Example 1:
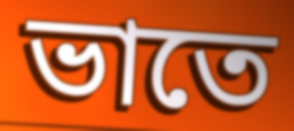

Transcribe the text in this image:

ভাতে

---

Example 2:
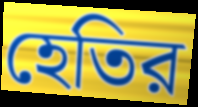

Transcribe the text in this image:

হেতির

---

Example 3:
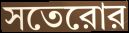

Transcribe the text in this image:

সতেরোর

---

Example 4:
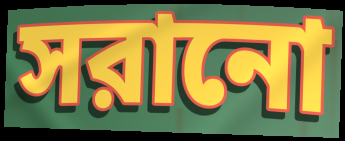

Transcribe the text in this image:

সরানো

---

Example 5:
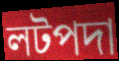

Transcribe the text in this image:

লটপদা